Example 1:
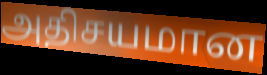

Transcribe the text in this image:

அதிசயமான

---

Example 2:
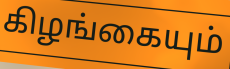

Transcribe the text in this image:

கிழங்கையும்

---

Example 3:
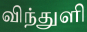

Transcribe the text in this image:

விந்துளி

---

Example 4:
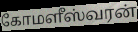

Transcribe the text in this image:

கோமளீஸ்வரன்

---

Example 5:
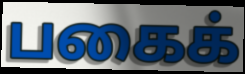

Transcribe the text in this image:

பகைக்